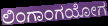
ಲಿಂಗಾಂಗಯೋಗ